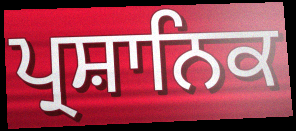
ਪ੍ਰਸ਼ਾਨਿਕ